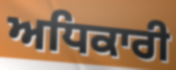
ਅਧਿਕਾਰੀ